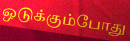
ஒடுக்கும்போது